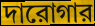
দারোগার